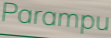
Parampu